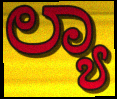
ಲ್ಯಾ